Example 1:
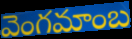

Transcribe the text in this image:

వెంగమాంబ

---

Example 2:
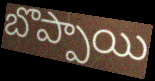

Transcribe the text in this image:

బొప్పాయి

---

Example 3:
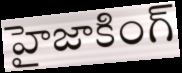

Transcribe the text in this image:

హైజాకింగ్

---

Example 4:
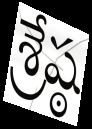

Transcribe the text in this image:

శ్రేష్ఠ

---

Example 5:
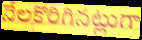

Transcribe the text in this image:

నేలకొరిగినట్లుగా